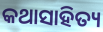
କଥାସାହିତ୍ୟ